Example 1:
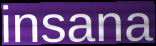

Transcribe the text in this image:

insana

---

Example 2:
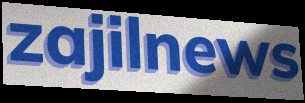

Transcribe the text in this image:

zajilnews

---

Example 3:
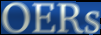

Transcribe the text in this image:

OERs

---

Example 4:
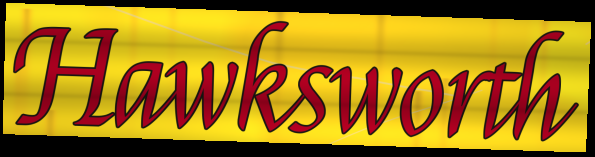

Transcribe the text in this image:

Hawksworth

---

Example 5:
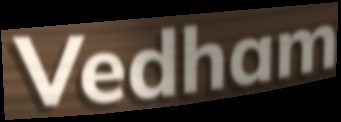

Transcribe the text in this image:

Vedham